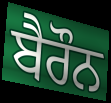
ਬੈਰੌਨ